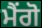
ਮੈਂਗੋ